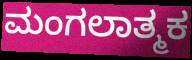
ಮಂಗಲಾತ್ಮಕ